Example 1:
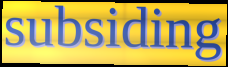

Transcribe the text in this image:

subsiding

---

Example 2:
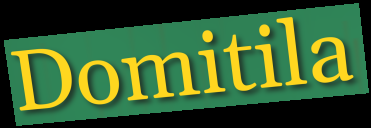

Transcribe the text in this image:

Domitila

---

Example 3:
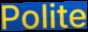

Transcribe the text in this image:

Polite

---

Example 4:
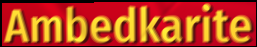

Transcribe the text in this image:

Ambedkarite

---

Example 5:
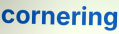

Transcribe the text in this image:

cornering